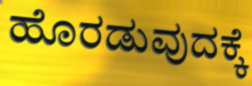
ಹೊರಡುವುದಕ್ಕೆ